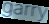
garry